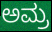
ಅಮ್ರ